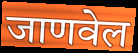
जाणवेल